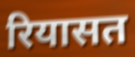
रियासत